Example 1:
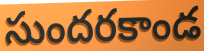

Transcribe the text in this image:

సుందరకాండ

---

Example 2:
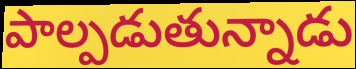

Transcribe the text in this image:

పాల్పడుతున్నాడు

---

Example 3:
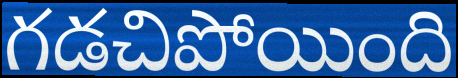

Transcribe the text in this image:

గడచిపోయింది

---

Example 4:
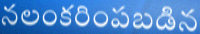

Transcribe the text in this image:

నలంకరింపబడిన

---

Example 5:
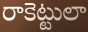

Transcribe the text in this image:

రాకెట్టులా